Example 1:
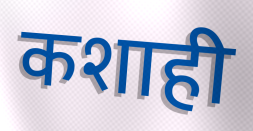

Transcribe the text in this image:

कशाही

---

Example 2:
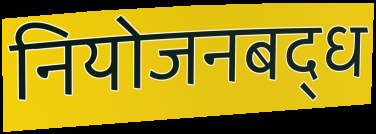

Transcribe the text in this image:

नियोजनबद्ध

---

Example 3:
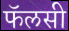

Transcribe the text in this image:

फॅलसी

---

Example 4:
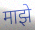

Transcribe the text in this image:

माझे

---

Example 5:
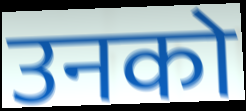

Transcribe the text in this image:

उनको